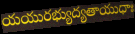
యయురభ్యుద్యతాయుధాః